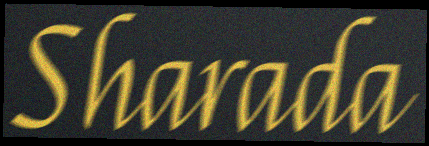
Sharada